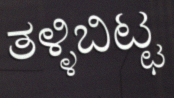
ತಳ್ಳಿಬಿಟ್ಟ